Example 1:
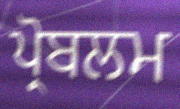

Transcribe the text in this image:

ਪ੍ਰੋਬਲਮ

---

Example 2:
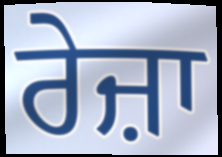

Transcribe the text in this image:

ਰੇਜ਼ਾ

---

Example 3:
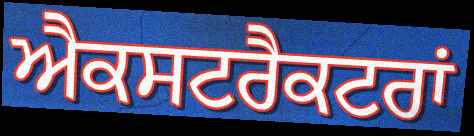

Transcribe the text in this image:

ਐਕਸਟਰੈਕਟਰਾਂ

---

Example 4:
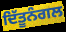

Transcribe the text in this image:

ਦਿੱਤੂਨੰਗਲ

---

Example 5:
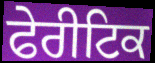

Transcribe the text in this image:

ਫੇਰੀਟਿਕ